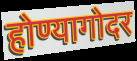
होण्यागोदर